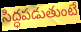
సిద్ధపడుతుంటే